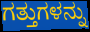
ಗತ್ತುಗಳನ್ನು